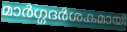
മാർഗ്ഗദർശകമായി